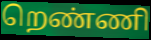
றெண்ணி